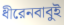
ধীরেনবাবুই